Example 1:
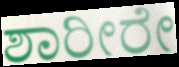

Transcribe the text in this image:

ಶಾರೀರೇ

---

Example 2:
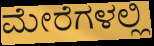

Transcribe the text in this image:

ಮೇರೆಗಳಲ್ಲಿ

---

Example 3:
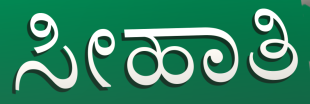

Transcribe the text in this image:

ಸೀಹಾತಿ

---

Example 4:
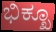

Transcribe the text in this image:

ಭಿಕ್ಖೂ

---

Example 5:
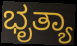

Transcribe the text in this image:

ಭೃತ್ಯಾ